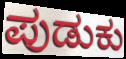
ಪುಡುಕು